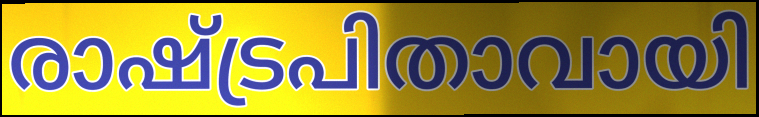
രാഷ്ട്രപിതാവായി